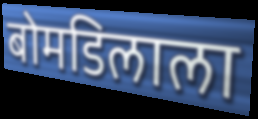
बोमडिलाला